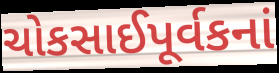
ચોકસાઈપૂર્વકનાં